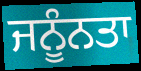
ਜਨੂੰਨਤਾ